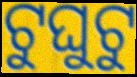
ଟୁଘୁଟୁ